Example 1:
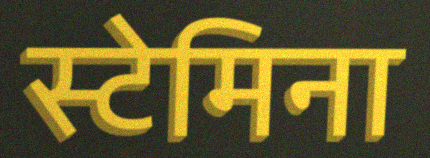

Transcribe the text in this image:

स्टेमिना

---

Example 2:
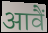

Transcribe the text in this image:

आवैं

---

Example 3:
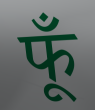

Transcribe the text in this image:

फूँ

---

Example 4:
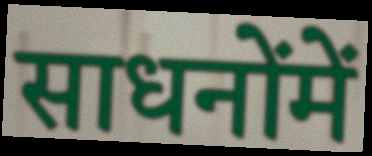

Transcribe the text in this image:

साधनोंमें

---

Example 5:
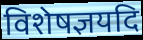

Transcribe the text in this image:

विशेषज्ञयदि